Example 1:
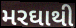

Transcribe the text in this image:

મરઘાથી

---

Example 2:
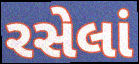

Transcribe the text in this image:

રસેલાં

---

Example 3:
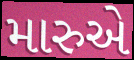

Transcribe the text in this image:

મારુએ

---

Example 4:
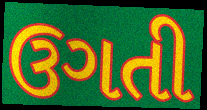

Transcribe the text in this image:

ઉગતી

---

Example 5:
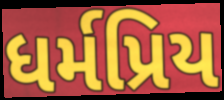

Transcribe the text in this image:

ધર્મપ્રિય